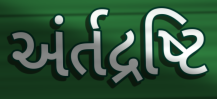
અંર્તદ્રષ્ટિ